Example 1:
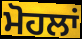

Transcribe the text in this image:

ਮੋਹਲਾਂ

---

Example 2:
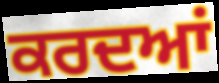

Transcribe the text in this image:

ਕਰਦਆਂ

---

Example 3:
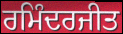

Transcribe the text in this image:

ਰਮਿੰਦਰਜੀਤ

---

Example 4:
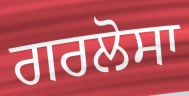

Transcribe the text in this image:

ਗਰਲੋਸਾ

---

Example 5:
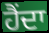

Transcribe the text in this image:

ਹੈਂਦਾ